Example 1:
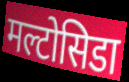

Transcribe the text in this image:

मल्टोसिडा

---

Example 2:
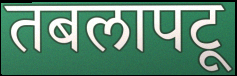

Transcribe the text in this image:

तबलापटू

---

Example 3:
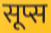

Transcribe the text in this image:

सूप्स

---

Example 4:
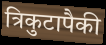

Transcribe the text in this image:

त्रिकुटापैकी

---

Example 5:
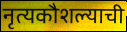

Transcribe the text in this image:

नृत्यकौशल्याची